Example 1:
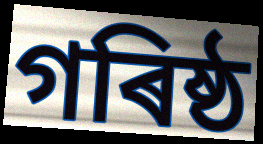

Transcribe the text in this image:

গৰিষ্ঠ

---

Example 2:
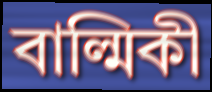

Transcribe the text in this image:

বাল্মিকী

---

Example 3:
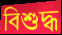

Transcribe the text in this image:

বিশুদ্ধ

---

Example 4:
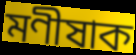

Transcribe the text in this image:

মণীষাক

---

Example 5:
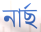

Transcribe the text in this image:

নাৰ্ছ